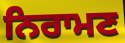
ਨਿਰਾਮਣ